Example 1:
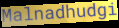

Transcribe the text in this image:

Malnadhudgi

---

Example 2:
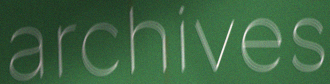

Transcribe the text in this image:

archives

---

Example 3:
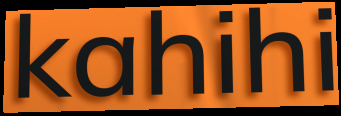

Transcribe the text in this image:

kahihi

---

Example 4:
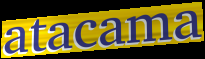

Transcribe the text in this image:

atacama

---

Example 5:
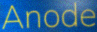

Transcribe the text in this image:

Anode